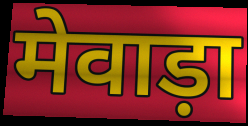
मेवाड़ा